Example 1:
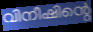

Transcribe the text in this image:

വിനീഷിന്റെ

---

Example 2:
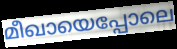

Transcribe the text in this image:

മീഖായെപ്പോലെ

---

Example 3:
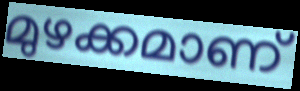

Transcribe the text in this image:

മുഴക്കമാണ്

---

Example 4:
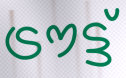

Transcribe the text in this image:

ട്രൗട്ട്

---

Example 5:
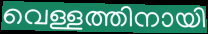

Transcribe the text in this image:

വെള്ളത്തിനായി